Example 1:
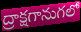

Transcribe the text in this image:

ద్రాక్షగానుగలో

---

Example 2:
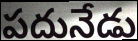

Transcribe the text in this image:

పదునేడు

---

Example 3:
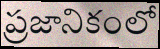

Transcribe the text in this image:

ప్రజానికంలో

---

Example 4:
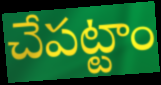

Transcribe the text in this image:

చేపట్టాం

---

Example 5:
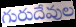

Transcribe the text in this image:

గురుదేవుల